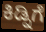
ಕಿಡ್ನಿಗೆ